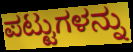
ಪಟ್ಟುಗಳನ್ನು